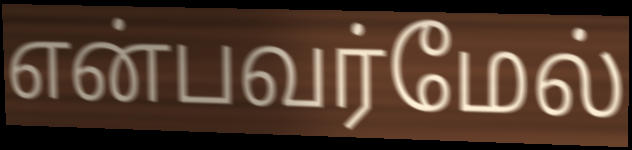
என்பவர்மேல்